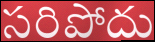
సరిపోదు